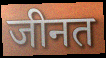
जीनत